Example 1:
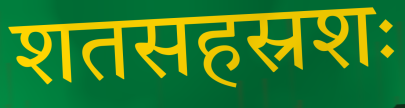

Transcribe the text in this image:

शतसहस्रशः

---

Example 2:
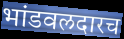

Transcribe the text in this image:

भांडवलदारच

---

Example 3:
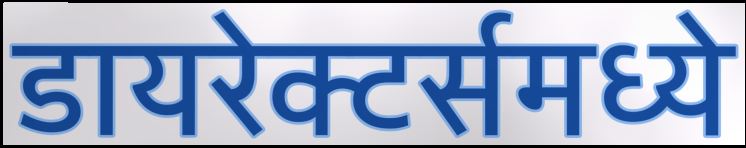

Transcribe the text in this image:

डायरेक्टर्समध्ये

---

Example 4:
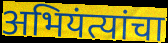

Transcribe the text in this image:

अभियंत्यांचा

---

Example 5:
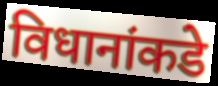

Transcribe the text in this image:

विधानांकडे